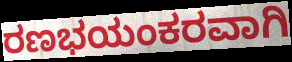
ರಣಭಯಂಕರವಾಗಿ